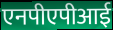
एनपीएपीआई